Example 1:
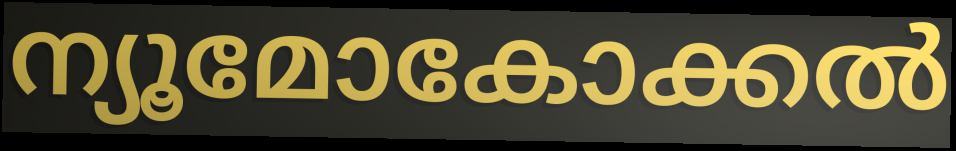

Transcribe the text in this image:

ന്യൂമോകോക്കൽ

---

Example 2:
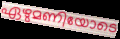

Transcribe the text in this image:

ഏഴുമണിയോടെ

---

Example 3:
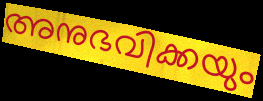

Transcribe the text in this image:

അനുഭവിക്കയും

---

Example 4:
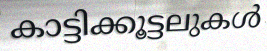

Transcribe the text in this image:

കാട്ടിക്കൂട്ടലുകൾ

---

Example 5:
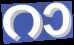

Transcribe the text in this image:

റാ